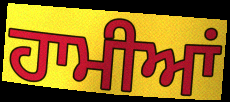
ਹਾਮੀਆਂ